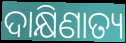
ଦାକ୍ଷିଣାତ୍ୟ